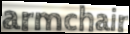
armchair